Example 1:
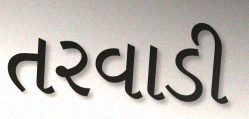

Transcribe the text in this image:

તરવાડી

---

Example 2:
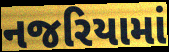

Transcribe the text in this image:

નજરિયામાં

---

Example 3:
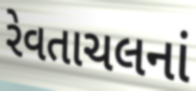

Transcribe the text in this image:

રેવતાચલનાં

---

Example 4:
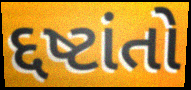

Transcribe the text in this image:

દ્દષ્ટાંતો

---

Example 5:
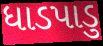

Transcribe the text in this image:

ધાડપાડુ